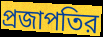
প্রজাপতির